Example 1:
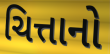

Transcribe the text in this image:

ચિત્તાનો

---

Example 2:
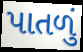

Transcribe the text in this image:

પાતળું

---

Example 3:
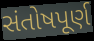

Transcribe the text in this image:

સંતોષપૂર્ણ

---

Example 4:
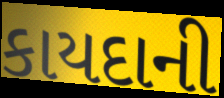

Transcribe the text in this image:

કાયદાની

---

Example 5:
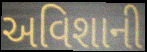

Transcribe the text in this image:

અવિશાની